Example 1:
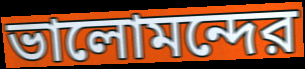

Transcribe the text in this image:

ভালোমন্দের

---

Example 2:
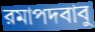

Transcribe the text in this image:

রমাপদবাবু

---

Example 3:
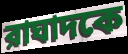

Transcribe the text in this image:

রাঘাদকে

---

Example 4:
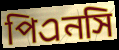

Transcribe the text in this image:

পিএনসি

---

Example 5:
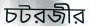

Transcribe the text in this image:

চটরজীর